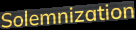
Solemnization